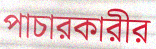
পাচারকারীর